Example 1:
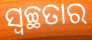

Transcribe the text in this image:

ସ୍ଵଚ୍ଛତାର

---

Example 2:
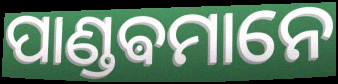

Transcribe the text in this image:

ପାଣ୍ଡଵମାନେ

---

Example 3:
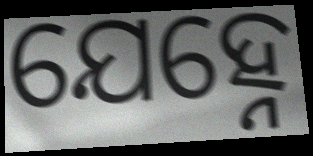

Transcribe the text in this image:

ଯେହ୍ନେ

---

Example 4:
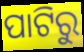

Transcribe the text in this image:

ପାଟିରୁ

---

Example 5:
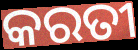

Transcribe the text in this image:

କରତୀ